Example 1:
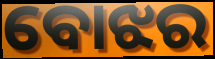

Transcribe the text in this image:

ବୋଝର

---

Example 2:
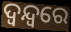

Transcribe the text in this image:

ଦ୍ୱନ୍ଦ୍ବରେ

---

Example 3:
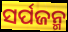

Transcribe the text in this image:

ସର୍ପଜନ୍ମ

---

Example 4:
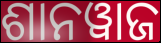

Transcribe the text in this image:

ଶାନୱାଜ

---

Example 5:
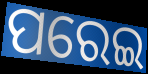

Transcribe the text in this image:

ପରେଇ